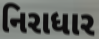
નિરાધાર